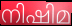
നിഷിമ